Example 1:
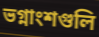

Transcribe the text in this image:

ভগ্নাংশগুলি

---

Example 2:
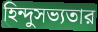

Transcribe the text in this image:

হিন্দুসভ্যতার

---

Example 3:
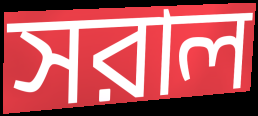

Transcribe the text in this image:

সরাল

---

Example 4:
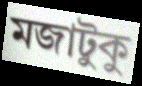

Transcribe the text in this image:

মজাটুকু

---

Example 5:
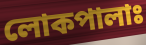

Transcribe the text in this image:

লোকপালাঃ